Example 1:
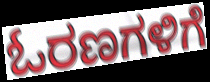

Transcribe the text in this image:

ಓರಣಗಳಿಗೆ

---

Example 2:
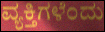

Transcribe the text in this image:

ವ್ಯಕ್ತಿಗಳೆಂದು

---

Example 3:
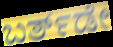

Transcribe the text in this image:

ಬರ್ತ್‌ಡೇ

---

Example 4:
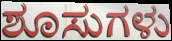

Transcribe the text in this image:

ಶೂಸುಗಳು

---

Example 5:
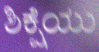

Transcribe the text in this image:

ಶಿಕ್ಷೆಯು